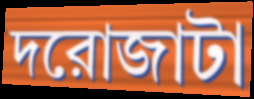
দরোজাটা